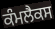
ਕੰਮਲੈਕਸ